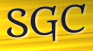
SGC